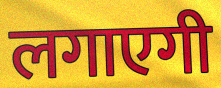
लगाएगी